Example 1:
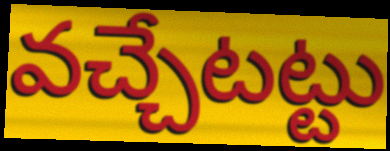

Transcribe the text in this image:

వచ్చేటట్టు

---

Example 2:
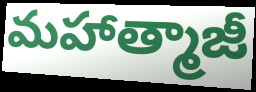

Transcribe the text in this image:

మహాత్మాజీ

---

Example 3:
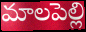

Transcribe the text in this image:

మాలపెల్లి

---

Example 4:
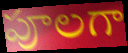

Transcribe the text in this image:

పూలగా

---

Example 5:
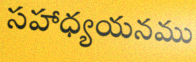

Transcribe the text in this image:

సహాధ్యయనము